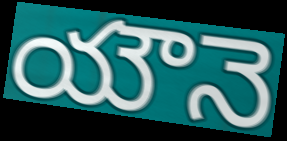
యౌనె